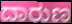
ದಾರುಣ